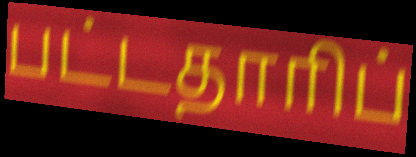
பட்டதாரிப்